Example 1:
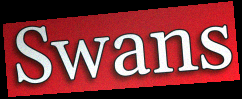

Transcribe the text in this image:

Swans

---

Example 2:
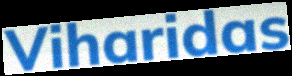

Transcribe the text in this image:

Viharidas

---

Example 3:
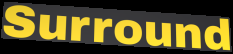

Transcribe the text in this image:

Surround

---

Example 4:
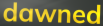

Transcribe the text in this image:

dawned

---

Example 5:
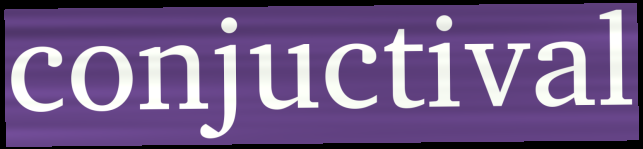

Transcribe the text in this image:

conjuctival